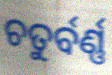
ଚତୁର୍ବର୍ଣ୍ଣ